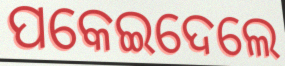
ପକେଇଦେଲେ